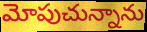
మోపుచున్నాను